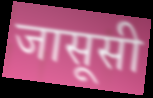
जासूसी